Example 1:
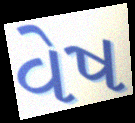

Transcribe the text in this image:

વેષ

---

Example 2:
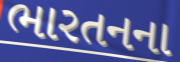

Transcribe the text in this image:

ભારતનના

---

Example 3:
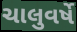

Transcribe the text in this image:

ચાલુવર્ષે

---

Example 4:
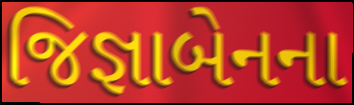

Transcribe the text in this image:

જિજ્ઞાબેનના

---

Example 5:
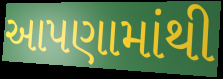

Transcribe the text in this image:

આપણામાંથી